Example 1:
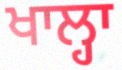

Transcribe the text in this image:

ਖਾਲ੍ਹਾ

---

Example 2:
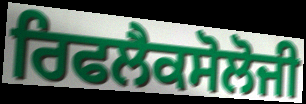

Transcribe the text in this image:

ਰਿਫਲੈਕਸੋਲੋਜੀ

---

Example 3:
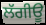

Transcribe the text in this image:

ਲੱਗੀਊ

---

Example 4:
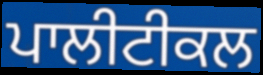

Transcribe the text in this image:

ਪਾਲੀਟੀਕਲ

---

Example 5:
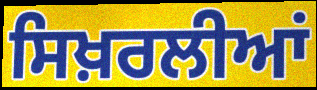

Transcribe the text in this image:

ਸਿਖ਼ਰਲੀਆਂ